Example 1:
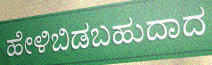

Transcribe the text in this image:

ಹೇಳಿಬಿಡಬಹುದಾದ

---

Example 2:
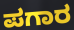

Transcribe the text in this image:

ಪಗಾರ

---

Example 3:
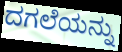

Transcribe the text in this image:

ದಗಲೆಯನ್ನು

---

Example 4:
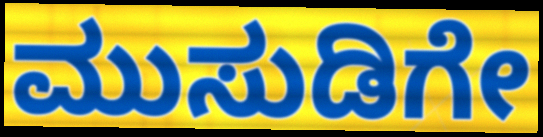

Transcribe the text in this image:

ಮುಸುಡಿಗೇ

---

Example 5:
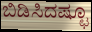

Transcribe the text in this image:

ಬಿಡಿಸಿದಷ್ಟೂ